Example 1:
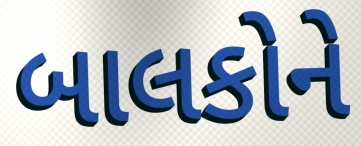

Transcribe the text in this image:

બાલકોને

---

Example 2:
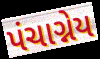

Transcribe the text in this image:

પંચાગ્નેય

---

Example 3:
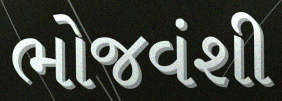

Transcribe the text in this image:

ભોજવંશી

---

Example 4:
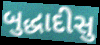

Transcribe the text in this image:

બુદ્ધાદીસુ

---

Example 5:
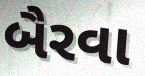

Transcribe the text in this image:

બૈરવા